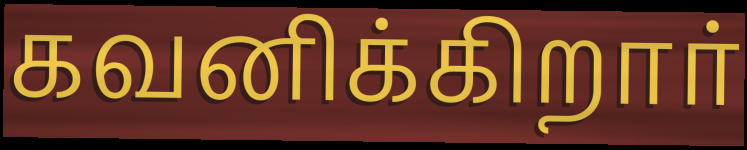
கவனிக்கிறார்